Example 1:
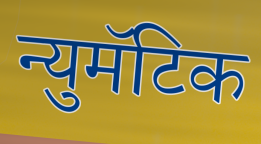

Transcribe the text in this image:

न्युमॅटिक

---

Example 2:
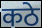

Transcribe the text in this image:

कठे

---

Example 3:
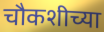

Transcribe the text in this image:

चौकशीच्या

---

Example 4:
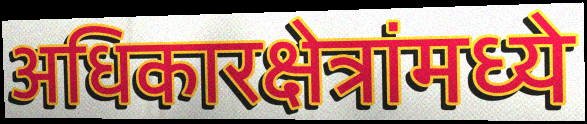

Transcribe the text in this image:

अधिकारक्षेत्रांमध्ये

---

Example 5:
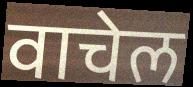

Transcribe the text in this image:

वाचेल